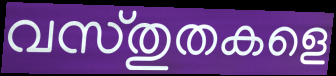
വസ്തുതകളെ